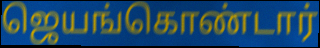
ஜெயங்கொண்டார்